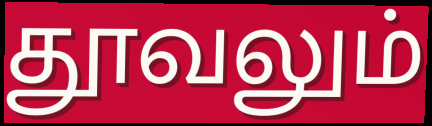
தூவலும்